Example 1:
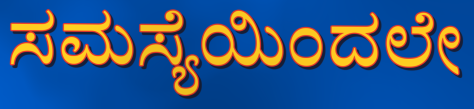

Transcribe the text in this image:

ಸಮಸ್ಯೆಯಿಂದಲೇ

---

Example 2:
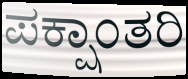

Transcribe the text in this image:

ಪಕ್ಷಾಂತರಿ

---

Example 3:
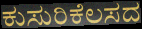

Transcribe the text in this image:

ಕುಸುರಿಕೆಲಸದ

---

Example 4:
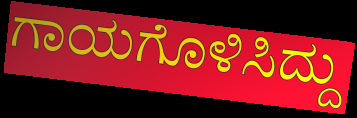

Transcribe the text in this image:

ಗಾಯಗೊಳಿಸಿದ್ದು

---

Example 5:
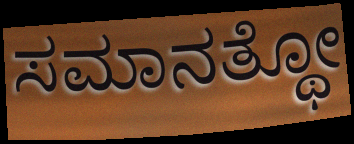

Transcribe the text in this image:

ಸಮಾನತ್ಥೋ